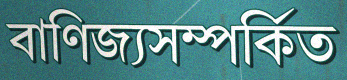
বাণিজ্যসম্পর্কিত